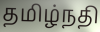
தமிழ்நதி